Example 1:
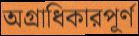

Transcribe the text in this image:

অগ্রাধিকারপূর্ণ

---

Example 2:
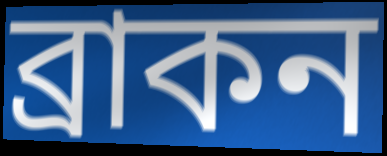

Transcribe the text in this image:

ব্রাকন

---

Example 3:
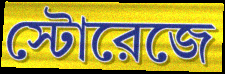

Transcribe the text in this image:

স্টোরেজে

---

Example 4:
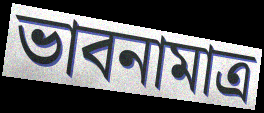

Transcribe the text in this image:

ভাবনামাত্র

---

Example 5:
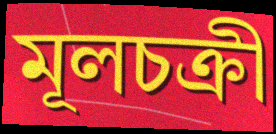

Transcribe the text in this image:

মূলচক্রী